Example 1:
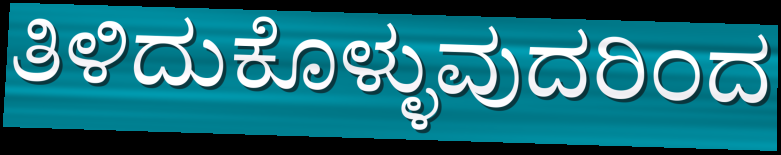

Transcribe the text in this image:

ತಿಳಿದುಕೊಳ್ಳುವುದರಿಂದ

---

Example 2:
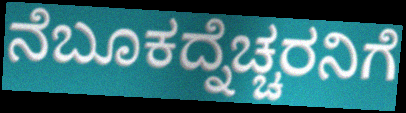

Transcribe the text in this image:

ನೆಬೂಕದ್ನೆಚ್ಚರನಿಗೆ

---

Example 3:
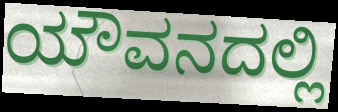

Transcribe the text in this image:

ಯೌವನದಲ್ಲಿ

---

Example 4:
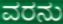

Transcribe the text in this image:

ವರನು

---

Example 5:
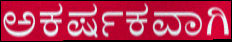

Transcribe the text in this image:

ಅಕರ್ಷಕವಾಗಿ